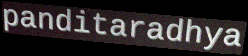
panditaradhya